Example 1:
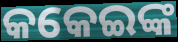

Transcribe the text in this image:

କକେଇଙ୍କ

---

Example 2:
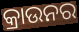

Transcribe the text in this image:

କ୍ରାଉନର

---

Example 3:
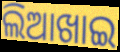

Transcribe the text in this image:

ଲିଆଖାଇ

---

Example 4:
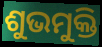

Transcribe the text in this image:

ଶୁଭମୁକ୍ତି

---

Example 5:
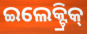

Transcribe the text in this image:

ଇଲେକ୍ଟ୍ରିକ୍